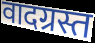
वादग्रस्त